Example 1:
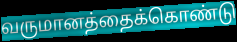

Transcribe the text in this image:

வருமானத்தைக்கொண்டு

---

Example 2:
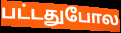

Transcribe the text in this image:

பட்டதுபோல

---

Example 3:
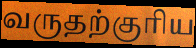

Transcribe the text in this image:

வருதற்குரிய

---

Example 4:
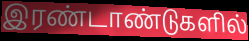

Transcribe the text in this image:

இரண்டாண்டுகளில்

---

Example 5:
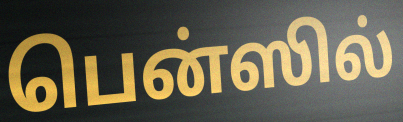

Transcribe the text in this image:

பென்ஸில்